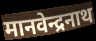
मानवेन्द्रनाथ